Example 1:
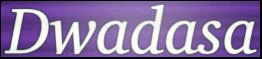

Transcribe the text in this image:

Dwadasa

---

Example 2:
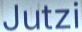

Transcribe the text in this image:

Jutzi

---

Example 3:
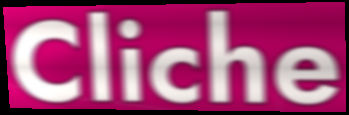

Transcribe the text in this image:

Cliche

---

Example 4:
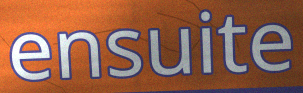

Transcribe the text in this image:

ensuite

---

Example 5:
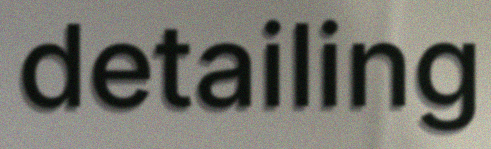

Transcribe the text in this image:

detailing